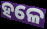
ହଳେ